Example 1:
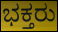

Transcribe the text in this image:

ಭಕ್ತರು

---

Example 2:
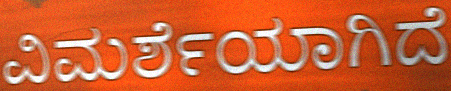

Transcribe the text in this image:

ವಿಮರ್ಶೆಯಾಗಿದೆ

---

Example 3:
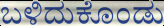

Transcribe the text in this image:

ಬಳಿದುಕೊಂಡು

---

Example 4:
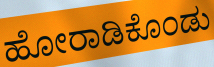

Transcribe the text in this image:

ಹೋರಾಡಿಕೊಂಡು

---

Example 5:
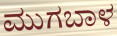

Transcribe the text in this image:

ಮುಗಬಾಳ